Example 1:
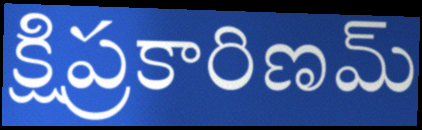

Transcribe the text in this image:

క్షిప్రకారిణమ్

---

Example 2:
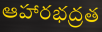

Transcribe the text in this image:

ఆహారభద్రత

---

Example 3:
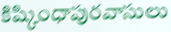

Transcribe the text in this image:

కిష్కింధాపురవాసులు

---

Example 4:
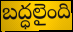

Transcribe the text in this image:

బద్ధలైంది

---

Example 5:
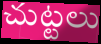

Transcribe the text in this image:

చుట్టలు